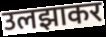
उलझाकर